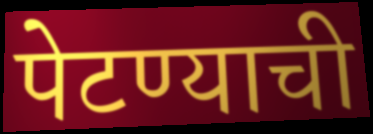
पेटण्याची